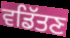
ਵਡਿੱਤਣ